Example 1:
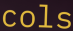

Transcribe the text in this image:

cols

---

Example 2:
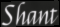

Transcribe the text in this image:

Shant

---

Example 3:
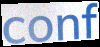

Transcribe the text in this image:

conf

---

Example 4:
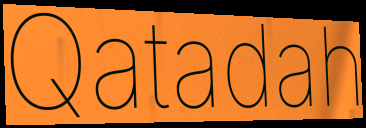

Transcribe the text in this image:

Qatadah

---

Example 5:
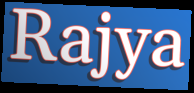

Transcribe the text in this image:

Rajya